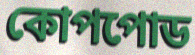
কোপপোড